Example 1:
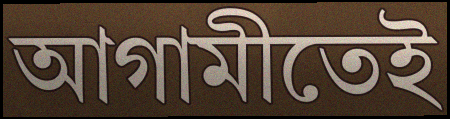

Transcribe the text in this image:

আগামীতেই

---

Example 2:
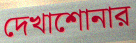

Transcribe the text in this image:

দেখাশোনার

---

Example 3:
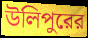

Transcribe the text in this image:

উলিপুরের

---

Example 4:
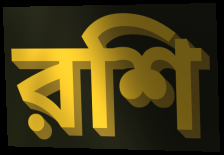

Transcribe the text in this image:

রশি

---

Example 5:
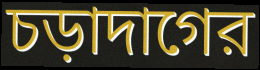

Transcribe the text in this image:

চড়াদাগের